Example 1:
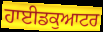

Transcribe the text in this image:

ਹਾਈਡਕੁਆਟਰ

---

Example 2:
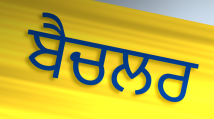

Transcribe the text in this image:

ਬੈਚਲਰ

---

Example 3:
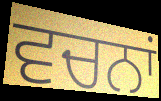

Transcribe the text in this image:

ਵਚਨਾਂ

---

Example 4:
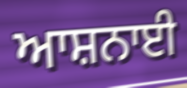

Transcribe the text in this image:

ਆਸ਼ਨਾਈ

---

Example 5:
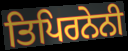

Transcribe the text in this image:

ਤਿਪਿਰਨੇਨੀ